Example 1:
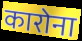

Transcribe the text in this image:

कारोना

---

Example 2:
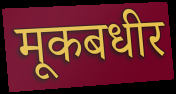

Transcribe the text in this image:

मूकबधीर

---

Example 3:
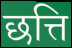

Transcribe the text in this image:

छत्ति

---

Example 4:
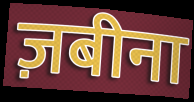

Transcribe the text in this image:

ज़बीना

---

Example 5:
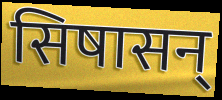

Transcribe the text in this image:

सिषासन्